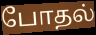
போதல்